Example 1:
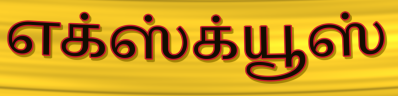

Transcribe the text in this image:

எக்ஸ்க்யூஸ்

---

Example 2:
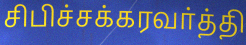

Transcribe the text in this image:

சிபிச்சக்கரவர்த்தி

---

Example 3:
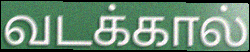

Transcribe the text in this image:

வடக்கால்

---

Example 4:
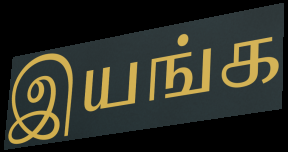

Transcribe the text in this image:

இயங்க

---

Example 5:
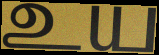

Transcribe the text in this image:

உய